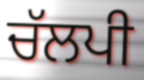
ਚੱਲਪੀ